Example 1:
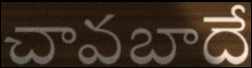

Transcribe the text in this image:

చావబాదే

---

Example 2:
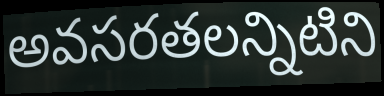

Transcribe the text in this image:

అవసరతలన్నిటిని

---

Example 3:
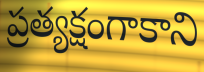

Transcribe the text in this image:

ప్రత్యక్షంగాకాని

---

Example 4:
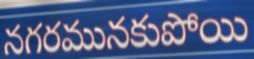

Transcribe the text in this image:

నగరమునకుపోయి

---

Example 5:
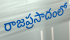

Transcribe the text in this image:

రాజప్రసాదంలో